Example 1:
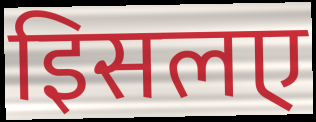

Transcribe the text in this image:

इिसलए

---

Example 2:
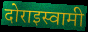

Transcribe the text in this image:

दोराइस्वामी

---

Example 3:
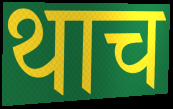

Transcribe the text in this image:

थाच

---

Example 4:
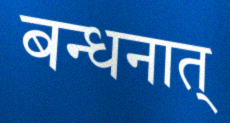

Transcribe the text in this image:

बन्धनात्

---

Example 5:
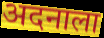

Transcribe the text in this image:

अदनाला